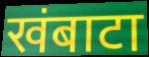
खंबाटा